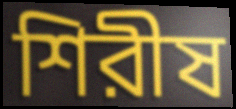
শিরীষ